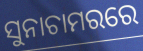
ସୁନାଚାମରରେ